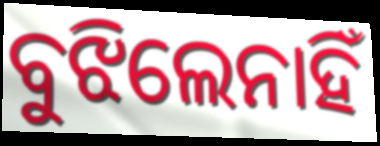
ବୁଝିଲେନାହିଁ